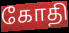
கோதி